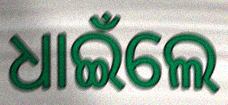
ଧାଇଁଲେ